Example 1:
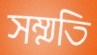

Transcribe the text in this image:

সম্মতি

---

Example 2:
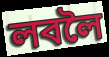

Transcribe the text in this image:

লবলৈ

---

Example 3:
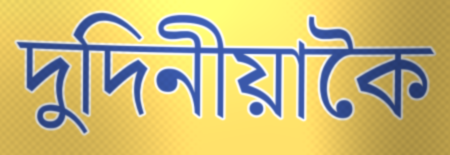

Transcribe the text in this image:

দুদিনীয়াকৈ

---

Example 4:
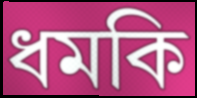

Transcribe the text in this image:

ধমকি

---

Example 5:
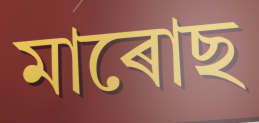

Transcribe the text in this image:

মাৰোছ